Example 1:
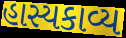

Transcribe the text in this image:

હાસ્યકાવ્ય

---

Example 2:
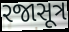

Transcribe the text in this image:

રજાસૂત્ર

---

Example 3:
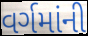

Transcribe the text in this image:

વર્ગમાંની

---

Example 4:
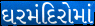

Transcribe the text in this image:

ઘરમંદિરોમાં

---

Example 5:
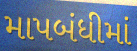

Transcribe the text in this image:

માપબંધીમાં